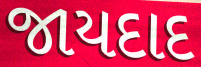
જાયદાદ